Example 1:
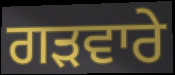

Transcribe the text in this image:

ਗੜਵਾਰੇ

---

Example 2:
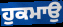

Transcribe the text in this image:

ਹੁਕਮਾਉ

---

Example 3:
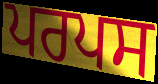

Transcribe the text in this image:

ਪਰਪਸ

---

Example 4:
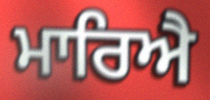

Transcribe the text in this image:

ਮਾਰਿਐ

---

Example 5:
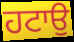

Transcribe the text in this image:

ਹਟਾਉ